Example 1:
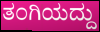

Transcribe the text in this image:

ತಂಗಿಯದ್ದು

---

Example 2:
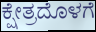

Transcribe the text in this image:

ಕ್ಷೇತ್ರದೊಳಗೆ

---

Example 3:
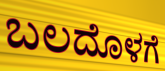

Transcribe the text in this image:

ಬಲದೊಳಗೆ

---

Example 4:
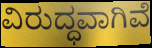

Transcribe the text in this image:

ವಿರುದ್ಧವಾಗಿವೆ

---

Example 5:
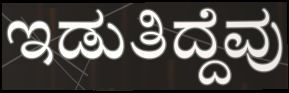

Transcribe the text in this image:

ಇಡುತಿದ್ದೆವು